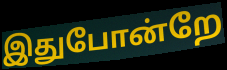
இதுபோன்றே